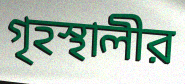
গৃহস্থালীর